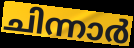
ചിന്നാർ